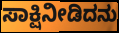
ಸಾಕ್ಷಿನೀಡಿದನು